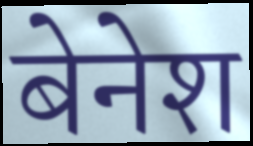
बेनेश